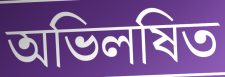
অভিলষিত